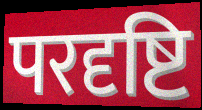
परदृष्टि